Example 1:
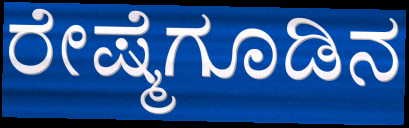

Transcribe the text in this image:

ರೇಷ್ಮೆಗೂಡಿನ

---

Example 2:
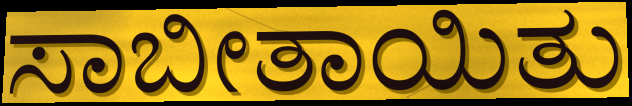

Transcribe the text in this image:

ಸಾಬೀತಾಯಿತು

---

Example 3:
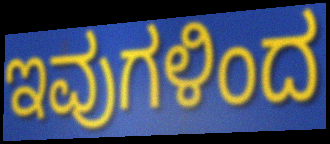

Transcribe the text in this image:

ಇವುಗಳಿಂದ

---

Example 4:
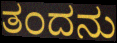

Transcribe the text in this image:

ತಂದನು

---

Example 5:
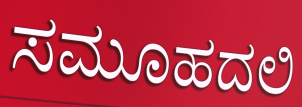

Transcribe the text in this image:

ಸಮೂಹದಲಿ